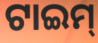
ଟାଇମ୍